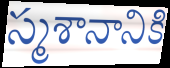
స్మశానానికి